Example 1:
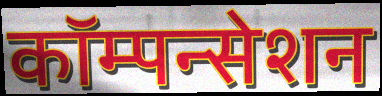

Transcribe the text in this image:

कॉम्पन्सेशन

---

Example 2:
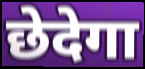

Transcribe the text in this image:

छेदेगा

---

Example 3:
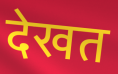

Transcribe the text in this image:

देखत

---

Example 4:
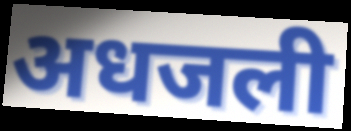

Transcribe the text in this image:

अधजली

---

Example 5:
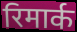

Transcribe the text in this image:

रिमार्क